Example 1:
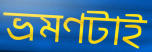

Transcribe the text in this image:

ভ্রমণটাই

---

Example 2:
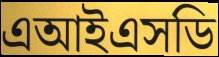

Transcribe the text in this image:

এআইএসডি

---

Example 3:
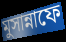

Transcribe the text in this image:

মুসান্নাফে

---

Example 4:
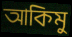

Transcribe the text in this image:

আকিমু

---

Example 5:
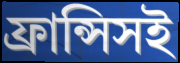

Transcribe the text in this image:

ফ্রান্সিসই